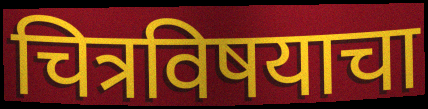
चित्रविषयाचा